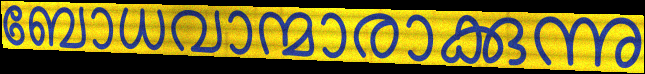
ബോധവാന്മാരാക്കുന്നു